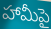
హామీపై